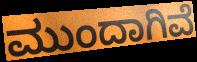
ಮುಂದಾಗಿವೆ